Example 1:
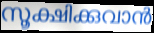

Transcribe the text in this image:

സൂക്ഷിക്കുവാൻ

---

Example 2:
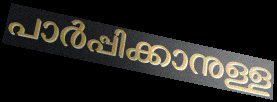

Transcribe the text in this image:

പാർപ്പിക്കാനുള്ള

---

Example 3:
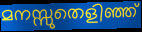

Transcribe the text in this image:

മനസ്സുതെളിഞ്ഞ്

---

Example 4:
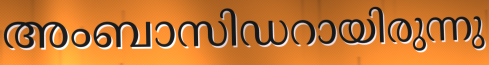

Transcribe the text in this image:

അംബാസിഡറായിരുന്നു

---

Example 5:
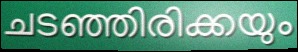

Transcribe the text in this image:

ചടഞ്ഞിരിക്കയും